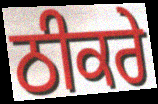
ਠੀਕਰੇ